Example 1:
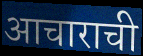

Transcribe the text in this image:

आचाराची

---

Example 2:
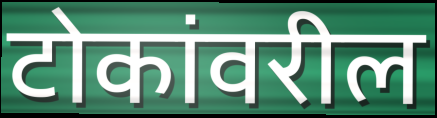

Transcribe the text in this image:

टोकांवरील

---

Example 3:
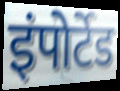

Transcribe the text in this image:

इंपोर्टेड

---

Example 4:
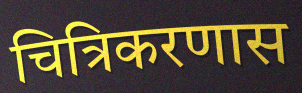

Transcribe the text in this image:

चित्रिकरणास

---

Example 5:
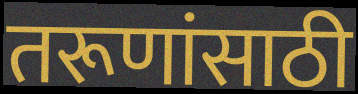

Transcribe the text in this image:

तरूणांसाठी